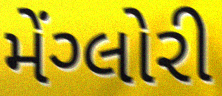
મેંગ્લોરી